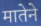
मातेने